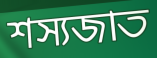
শস্যজাত